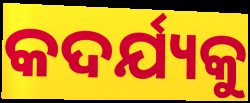
କଦର୍ଯ୍ୟକୁ